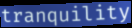
tranquility